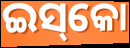
ଇସ୍‌କୋ